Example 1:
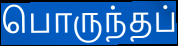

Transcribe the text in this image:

பொருந்தப்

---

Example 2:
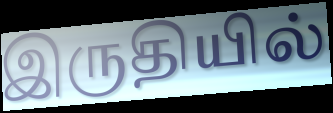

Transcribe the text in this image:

இருதியில்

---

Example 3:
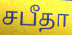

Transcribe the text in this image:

சபீதா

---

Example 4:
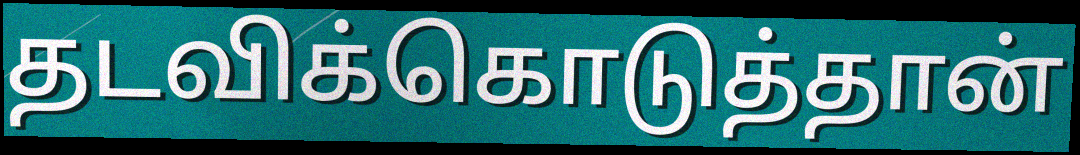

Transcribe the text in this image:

தடவிக்கொடுத்தான்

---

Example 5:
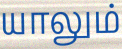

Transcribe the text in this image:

யாலும்